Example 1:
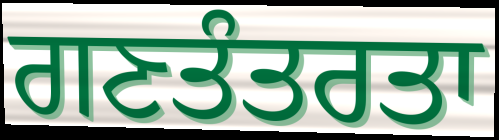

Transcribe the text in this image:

ਗਣਤੰਤਰਤਾ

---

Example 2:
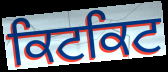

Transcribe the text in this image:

ਕਿਟਕਿਟ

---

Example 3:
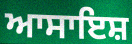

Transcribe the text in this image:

ਆਸਾਇਸ਼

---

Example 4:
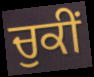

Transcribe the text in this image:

ਚੁਕੀਂ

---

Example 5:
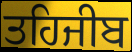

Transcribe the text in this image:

ਤਹਿਜੀਬ